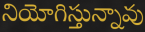
నియోగిస్తున్నావు